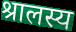
श्रालस्य